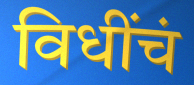
विधींचं